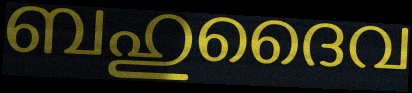
ബഹുദൈവ